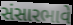
સંસારભાવે